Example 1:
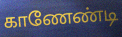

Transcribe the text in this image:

காணேண்டி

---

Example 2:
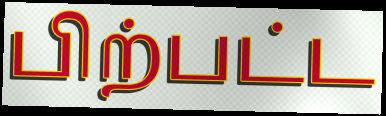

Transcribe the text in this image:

பிற்பட்ட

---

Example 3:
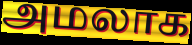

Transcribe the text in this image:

அமலாக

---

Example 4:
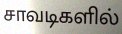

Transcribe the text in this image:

சாவடிகளில்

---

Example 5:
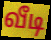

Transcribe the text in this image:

வீடி